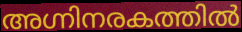
അഗ്നിനരകത്തിൽ